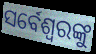
ସର୍ବେଶ୍ୱରଙ୍କୁ